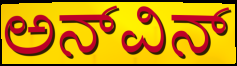
ಅನ್‌ವಿನ್